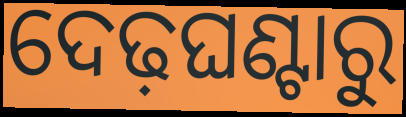
ଦେଢ଼ଘଣ୍ଟାରୁ